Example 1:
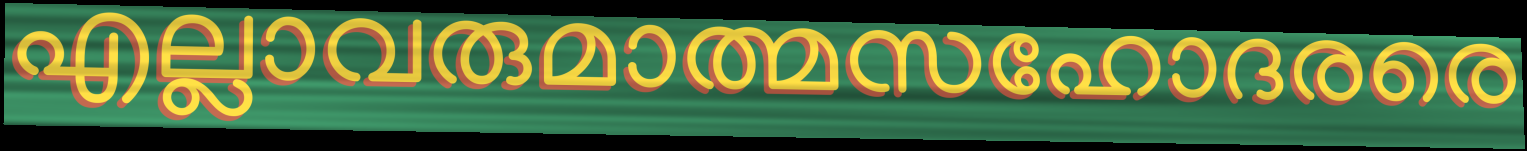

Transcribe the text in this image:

എല്ലാവരുമാത്മസഹോദരരെ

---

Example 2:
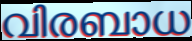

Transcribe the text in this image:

വിരബാധ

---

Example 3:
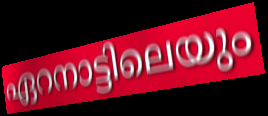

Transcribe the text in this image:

ഏറനാട്ടിലെയും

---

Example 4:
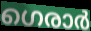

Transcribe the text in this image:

ഗെരാർ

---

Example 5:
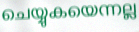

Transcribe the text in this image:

ചെയ്യുകയെന്നല്ല